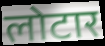
लोटार